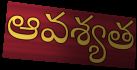
ఆవశ్యత